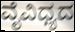
ವೈವಿಧ್ಯದ